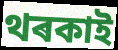
থৰকাই